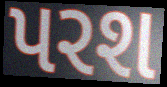
પરશ